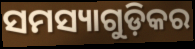
ସମସ୍ୟାଗୁଡ଼ିକର